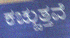
ಕಚ್ಚುತ್ತವೆ